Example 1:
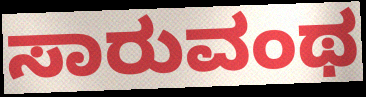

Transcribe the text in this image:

ಸಾರುವಂಥ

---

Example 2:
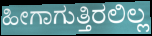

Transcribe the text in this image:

ಹೀಗಾಗುತ್ತಿರಲಿಲ್ಲ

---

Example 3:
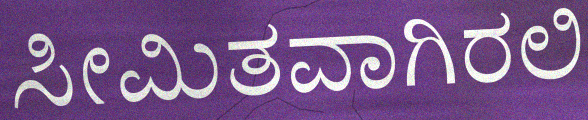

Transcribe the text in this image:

ಸೀಮಿತವಾಗಿರಲಿ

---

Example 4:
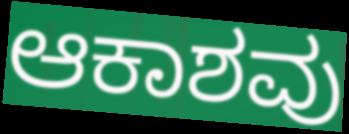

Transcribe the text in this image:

ಆಕಾಶವು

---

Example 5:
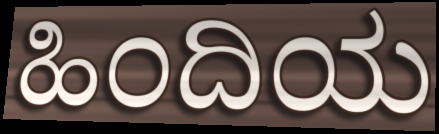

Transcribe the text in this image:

ಹಿಂದಿಯ